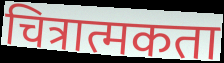
चित्रात्मकता